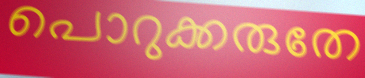
പൊറുക്കരുതേ